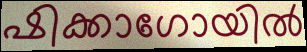
ഷിക്കാഗോയിൽ